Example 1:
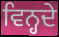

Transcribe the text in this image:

ਵਿਨ੍ਹਦੇ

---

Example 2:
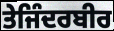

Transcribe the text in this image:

ਤੇਜਿੰਦਰਬੀਰ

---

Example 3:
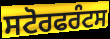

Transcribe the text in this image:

ਸਟੋਰਫਰੰਟਸ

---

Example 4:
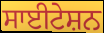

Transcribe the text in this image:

ਸਾਈਟੇਸ਼ਨ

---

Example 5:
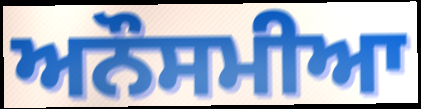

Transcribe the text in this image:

ਅਨੌਸਮੀਆ